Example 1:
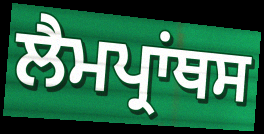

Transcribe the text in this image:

ਲੈਮਪ੍ਰਾਂਥਸ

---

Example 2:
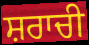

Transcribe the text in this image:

ਸ਼ਰਾਚੀ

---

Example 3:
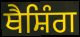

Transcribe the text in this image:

ਥੈਸ਼ਿੰਗ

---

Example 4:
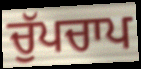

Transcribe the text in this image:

ਚੁੱਪਚਾਪ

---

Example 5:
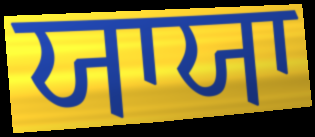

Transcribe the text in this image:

ਯਾਯਾ